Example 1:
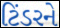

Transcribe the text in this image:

ટિંડરને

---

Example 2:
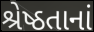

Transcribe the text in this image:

શ્રેષ્ઠતાનાં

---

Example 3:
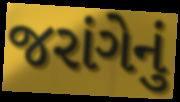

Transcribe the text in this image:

જરાંગેનું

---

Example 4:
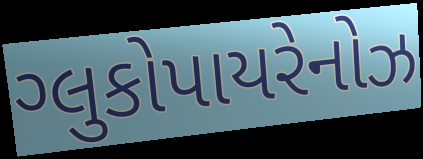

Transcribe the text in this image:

ગ્લુકોપાયરેનોઝ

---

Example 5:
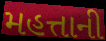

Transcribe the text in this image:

મહત્તાની